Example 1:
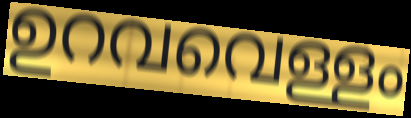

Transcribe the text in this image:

ഉറവവെള്ളം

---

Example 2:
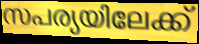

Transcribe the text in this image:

സപര്യയിലേക്ക്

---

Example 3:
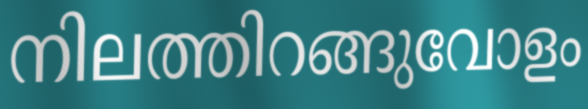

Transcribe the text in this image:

നിലത്തിറങ്ങുവോളം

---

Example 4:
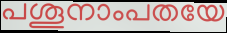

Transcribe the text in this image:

പശൂനാംപതയേ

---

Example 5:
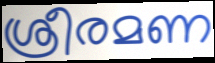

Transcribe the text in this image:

ശ്രീരമണ